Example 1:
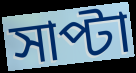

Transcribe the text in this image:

সাপ্টা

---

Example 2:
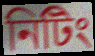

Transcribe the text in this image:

নিটিং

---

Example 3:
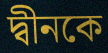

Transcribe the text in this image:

দ্বীনকে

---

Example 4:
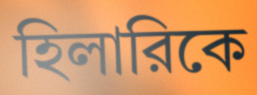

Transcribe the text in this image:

হিলারিকে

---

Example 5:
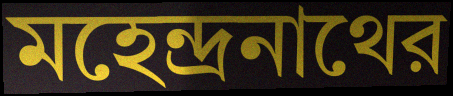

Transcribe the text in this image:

মহেন্দ্রনাথের